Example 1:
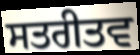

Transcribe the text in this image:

ਸਤਰੀਤਵ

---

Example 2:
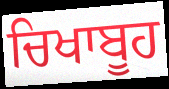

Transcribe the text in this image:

ਚਿਖਾਬੂਹ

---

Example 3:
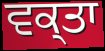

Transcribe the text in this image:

ਵਕ੍ਤਾ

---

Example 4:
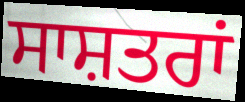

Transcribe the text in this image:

ਸਾਸ਼ਤਰਾਂ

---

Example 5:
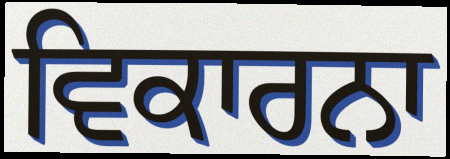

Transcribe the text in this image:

ਵਿਕਾਰਨਾ